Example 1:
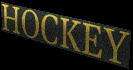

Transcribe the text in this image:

HOCKEY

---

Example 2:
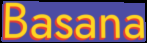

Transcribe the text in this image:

Basana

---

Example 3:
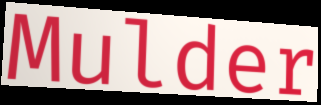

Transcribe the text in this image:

Mulder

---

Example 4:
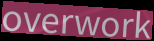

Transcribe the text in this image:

overwork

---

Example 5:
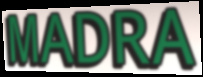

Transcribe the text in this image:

MADRA